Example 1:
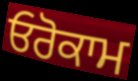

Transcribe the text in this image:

ਓਰੋਕਾਮ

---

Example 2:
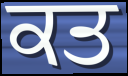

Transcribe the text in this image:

ਕਤ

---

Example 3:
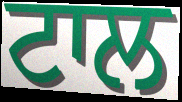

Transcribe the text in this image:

ਟਾਲ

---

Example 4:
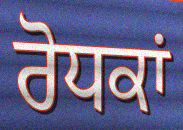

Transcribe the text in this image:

ਰੋਧਕਾਂ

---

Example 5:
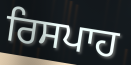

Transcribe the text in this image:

ਰਿਸਪਾਹ